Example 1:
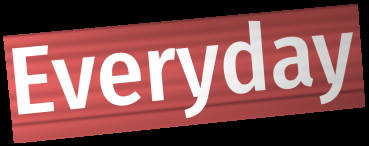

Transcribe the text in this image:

Everyday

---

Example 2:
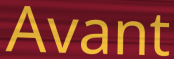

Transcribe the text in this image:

Avant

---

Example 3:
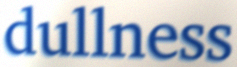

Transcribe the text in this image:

dullness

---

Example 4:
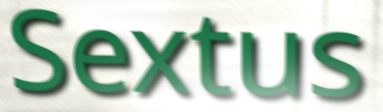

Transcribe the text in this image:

Sextus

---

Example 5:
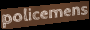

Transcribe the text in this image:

policemens